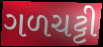
ગળચટ્ટી